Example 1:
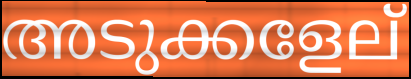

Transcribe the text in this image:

അടുക്കളേല്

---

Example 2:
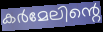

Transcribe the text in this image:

കർമേലിന്റെ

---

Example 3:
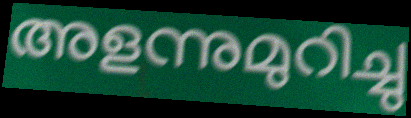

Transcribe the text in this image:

അളന്നുമുറിച്ചു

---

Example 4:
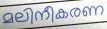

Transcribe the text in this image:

മലിനീകരണ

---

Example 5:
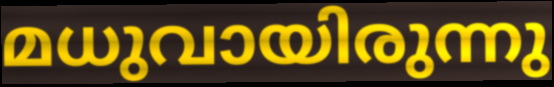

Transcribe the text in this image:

മധുവായിരുന്നു